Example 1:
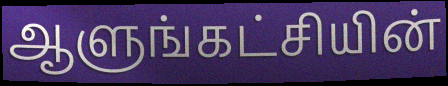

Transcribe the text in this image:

ஆளுங்கட்சியின்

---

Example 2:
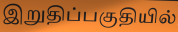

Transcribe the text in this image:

இறுதிப்பகுதியில்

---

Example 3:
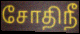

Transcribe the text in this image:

சோதிநீ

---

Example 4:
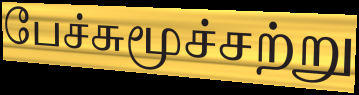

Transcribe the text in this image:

பேச்சுமூச்சற்று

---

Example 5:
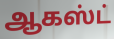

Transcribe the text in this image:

ஆகஸ்ட்